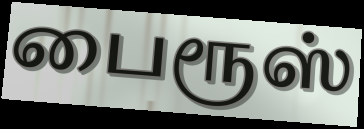
பைரூஸ்